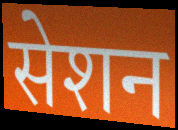
सेशन